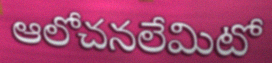
ఆలోచనలేమిటో